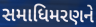
સમાધિમરણને